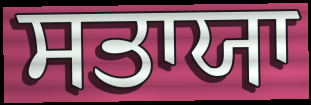
ਸਤਾਯਾ